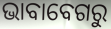
ଭାବାବେଗରୁ